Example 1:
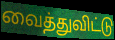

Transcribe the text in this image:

வைத்துவிட்டு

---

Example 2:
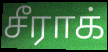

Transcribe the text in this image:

சீராக்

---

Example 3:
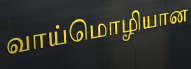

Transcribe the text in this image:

வாய்மொழியான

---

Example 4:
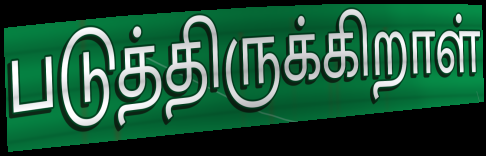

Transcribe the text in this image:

படுத்திருக்கிறாள்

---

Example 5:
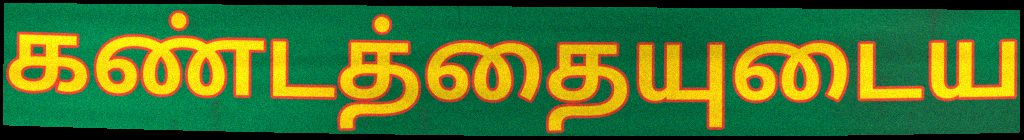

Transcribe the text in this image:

கண்டத்தையுடைய